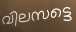
വിലസട്ടെ